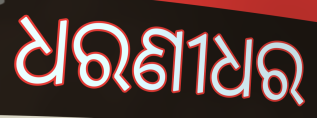
ଧରଣୀଧର